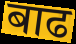
बाढ